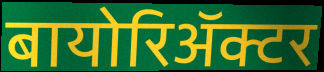
बायोरिॲक्टर